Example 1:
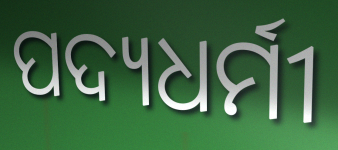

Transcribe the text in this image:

ପଦ୍ୟଧର୍ମୀ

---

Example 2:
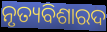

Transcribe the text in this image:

ନୃତ୍ୟବିଶାରଦ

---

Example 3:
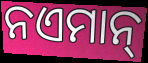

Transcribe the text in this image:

ନଏମାନ୍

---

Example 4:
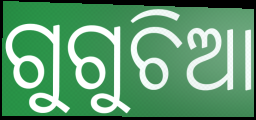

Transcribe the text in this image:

ଗୁଗୁଚିଆ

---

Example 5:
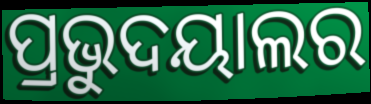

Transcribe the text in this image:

ପ୍ରଭୁଦୟାଲର